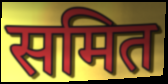
समित